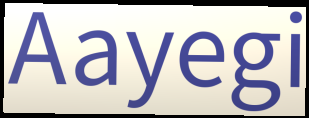
Aayegi